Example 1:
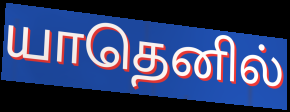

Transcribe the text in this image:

யாதெனில்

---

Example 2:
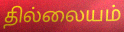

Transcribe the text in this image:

தில்லையம்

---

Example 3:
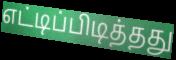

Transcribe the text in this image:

எட்டிப்பிடித்தது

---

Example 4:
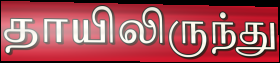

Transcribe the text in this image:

தாயிலிருந்து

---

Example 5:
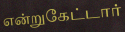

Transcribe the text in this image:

என்றுகேட்டார்